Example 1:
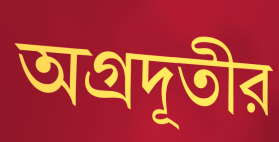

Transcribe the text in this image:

অগ্রদূতীর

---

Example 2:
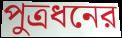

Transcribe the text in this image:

পুত্রধনের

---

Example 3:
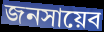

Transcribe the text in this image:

জনসায়েব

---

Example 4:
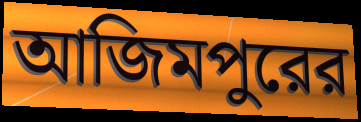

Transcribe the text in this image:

আজিমপুরের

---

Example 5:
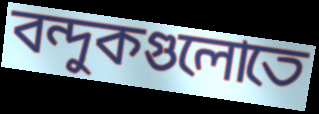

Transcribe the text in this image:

বন্দুকগুলোতে